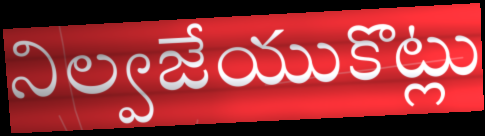
నిల్వజేయుకొట్లు